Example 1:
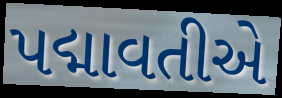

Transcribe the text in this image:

પદ્માવતીએ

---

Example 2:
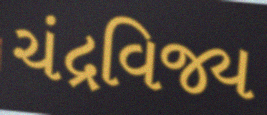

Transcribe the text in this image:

ચંદ્રવિજ્ય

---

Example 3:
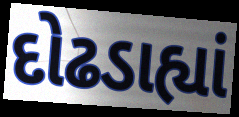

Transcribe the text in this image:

દોઢડાહ્યાં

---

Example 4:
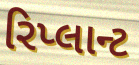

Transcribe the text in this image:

રિપ્લાન્ટ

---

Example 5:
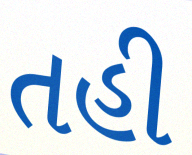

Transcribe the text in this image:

તહી